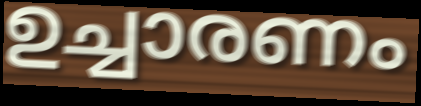
ഉച്ചാരണം